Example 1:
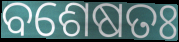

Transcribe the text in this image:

ବଶେଷତଃ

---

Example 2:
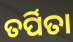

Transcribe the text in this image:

ତର୍ପିତା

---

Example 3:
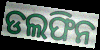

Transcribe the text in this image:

ଡଲଫିନ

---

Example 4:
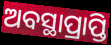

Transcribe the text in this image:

ଅବସ୍ଥାପ୍ରାପ୍ତି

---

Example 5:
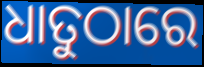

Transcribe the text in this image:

ଧାତୁଠାରେ